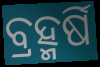
ବ୍ରହ୍ମର୍ଷି